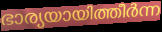
ഭാര്യയായിത്തീർന്ന